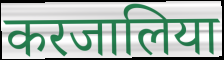
करजालिया